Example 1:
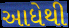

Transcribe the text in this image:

આધેથી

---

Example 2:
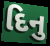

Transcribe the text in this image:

દિનુ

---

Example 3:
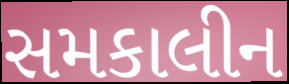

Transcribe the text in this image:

સમકાલીન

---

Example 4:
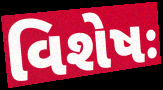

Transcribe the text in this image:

વિશેષઃ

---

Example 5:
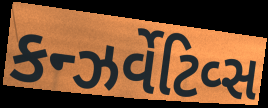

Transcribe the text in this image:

કન્ઝર્વેટિવ્સ